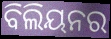
ବିଲିୟନର